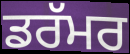
ਡਰੱਮਰ